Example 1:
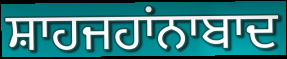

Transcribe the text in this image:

ਸ਼ਾਹਜਹਾਂਨਾਬਾਦ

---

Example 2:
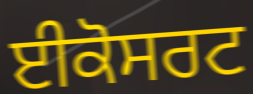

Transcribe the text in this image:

ਈਕੋਸਰਟ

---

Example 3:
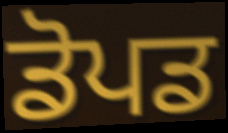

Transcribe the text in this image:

ਡੋਪਡ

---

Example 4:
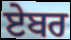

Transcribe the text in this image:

ਏਬਰ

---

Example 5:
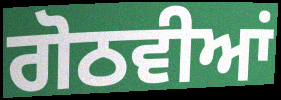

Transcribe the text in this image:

ਗੋਠਵੀਆਂ